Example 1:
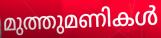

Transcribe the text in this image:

മുത്തുമണികൾ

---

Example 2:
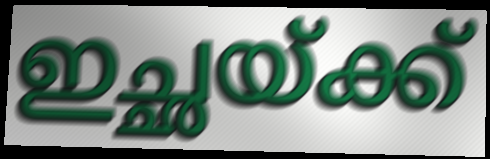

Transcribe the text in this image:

ഇച്ഛയ്ക്ക്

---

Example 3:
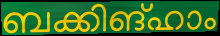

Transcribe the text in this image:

ബക്കിങ്ഹാം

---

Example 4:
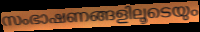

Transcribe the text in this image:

സംഭാഷണങ്ങളിലൂടെയും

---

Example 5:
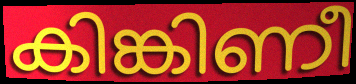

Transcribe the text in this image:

കിങ്കിണീ